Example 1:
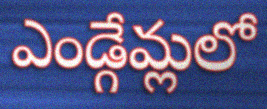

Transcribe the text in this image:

ఎండ్గేమ్లలో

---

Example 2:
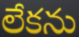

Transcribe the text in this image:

లేకను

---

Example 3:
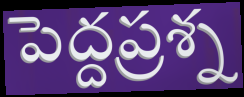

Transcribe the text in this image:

పెద్దప్రశ్న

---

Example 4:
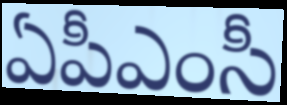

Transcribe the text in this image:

ఏపీఎంసీ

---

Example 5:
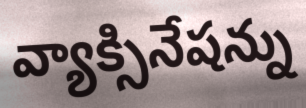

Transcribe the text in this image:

వ్యాక్సినేషన్ను